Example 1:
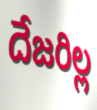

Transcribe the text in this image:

దేజరిల్ల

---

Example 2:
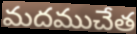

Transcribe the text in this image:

మదముచేత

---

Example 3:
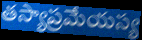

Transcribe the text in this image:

తస్యాప్రమేయస్య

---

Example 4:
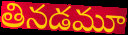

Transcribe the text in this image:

తినడమూ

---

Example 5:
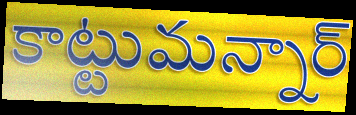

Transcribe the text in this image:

కాట్టుమన్నార్